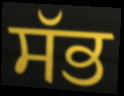
ਸੱਭ